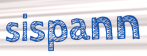
sispann